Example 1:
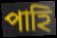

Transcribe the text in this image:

পাহি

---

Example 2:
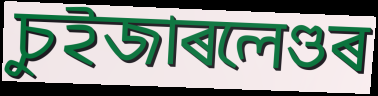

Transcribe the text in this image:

চুইজাৰলেণ্ডৰ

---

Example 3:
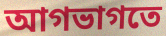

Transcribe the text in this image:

আগভাগতে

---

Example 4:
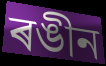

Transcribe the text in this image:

ৰঙীন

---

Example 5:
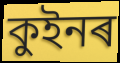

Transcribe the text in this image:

কুইনৰ